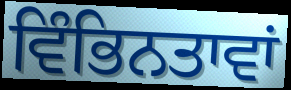
ਵਿੰਭਿਨਤਾਵਾਂ